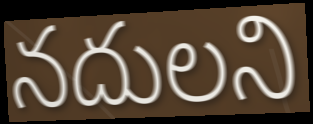
నదులని